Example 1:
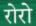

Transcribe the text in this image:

रोरो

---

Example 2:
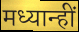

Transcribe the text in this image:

मध्यान्हीं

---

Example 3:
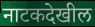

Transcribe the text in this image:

नाटकदेखील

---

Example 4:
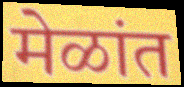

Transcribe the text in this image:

मेळांत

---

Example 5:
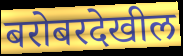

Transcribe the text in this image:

बरोबरदेखील